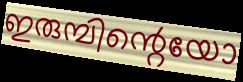
ഇരുമ്പിന്റെയോ